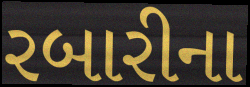
રબારીના